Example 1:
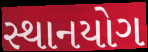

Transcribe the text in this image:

સ્થાનયોગ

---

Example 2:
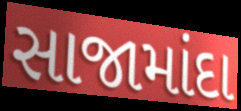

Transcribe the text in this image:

સાજામાંદા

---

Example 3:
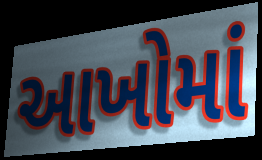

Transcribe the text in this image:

આખોમાં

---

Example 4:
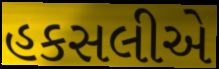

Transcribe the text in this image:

હકસલીએ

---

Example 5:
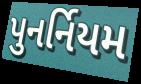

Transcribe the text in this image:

પુનર્નિયમ